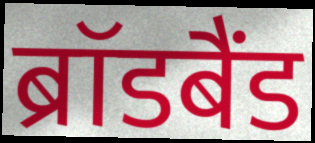
ब्रॉडबैंड